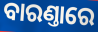
ବାରଣ୍ତାରେ